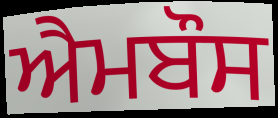
ਐਮਬੌਸ